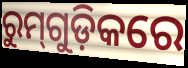
ରୁମ୍‌ଗୁଡ଼ିକରେ